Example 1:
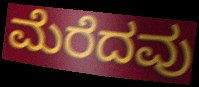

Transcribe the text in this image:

ಮೆರೆದವು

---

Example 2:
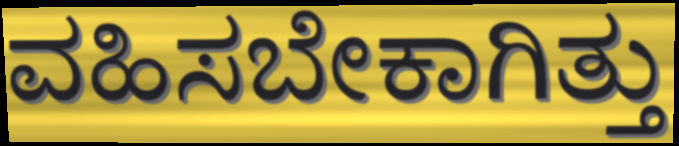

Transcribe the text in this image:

ವಹಿಸಬೇಕಾಗಿತ್ತು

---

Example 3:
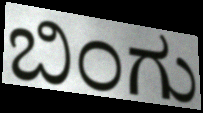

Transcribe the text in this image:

ಬಿಂಗು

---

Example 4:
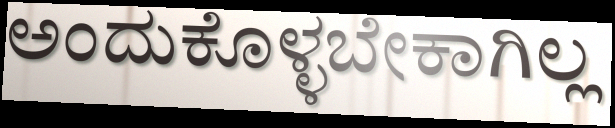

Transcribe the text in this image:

ಅಂದುಕೊಳ್ಳಬೇಕಾಗಿಲ್ಲ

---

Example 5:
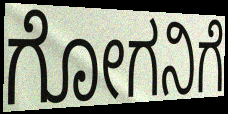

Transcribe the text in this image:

ಗೋಗನಿಗೆ